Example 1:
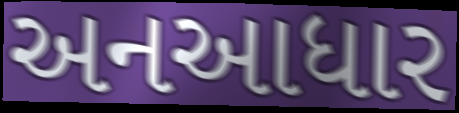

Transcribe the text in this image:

અનઆધાર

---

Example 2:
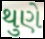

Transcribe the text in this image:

થુણે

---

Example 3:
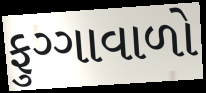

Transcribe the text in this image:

ફુગ્ગાવાળો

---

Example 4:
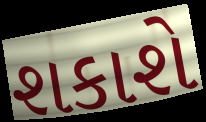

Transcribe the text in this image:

શકાશે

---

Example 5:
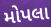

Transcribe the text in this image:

મોપલા